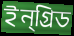
ইন্‌গ্রিড